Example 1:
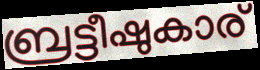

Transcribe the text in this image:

ബ്രട്ടീഷുകാര്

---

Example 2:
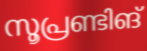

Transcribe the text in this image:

സൂപ്രണ്ടിങ്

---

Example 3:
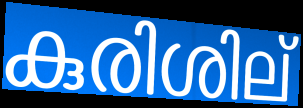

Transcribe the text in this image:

കുരിശില്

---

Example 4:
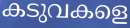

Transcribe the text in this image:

കടുവകളെ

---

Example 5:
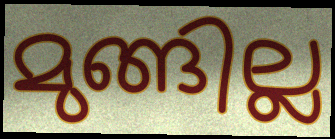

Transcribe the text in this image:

മുങ്ങില്ല